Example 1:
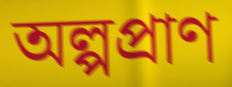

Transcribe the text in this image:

অল্পপ্ৰাণ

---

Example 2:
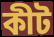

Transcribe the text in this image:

কীট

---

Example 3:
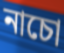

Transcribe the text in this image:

নাচো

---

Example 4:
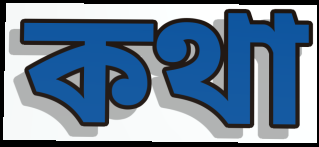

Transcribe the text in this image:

কথা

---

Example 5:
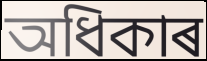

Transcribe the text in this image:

অধিকাৰ